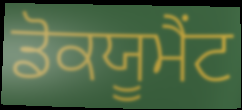
ਡੋਕਯੂਮੈਂਟ